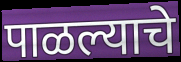
पाळल्याचे